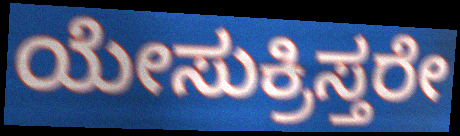
ಯೇಸುಕ್ರಿಸ್ತರೇ